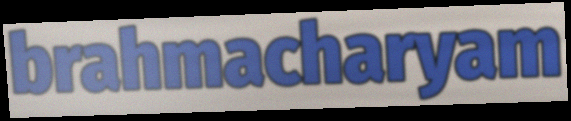
brahmacharyam